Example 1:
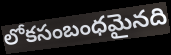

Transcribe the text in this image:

లోకసంబంధమైనది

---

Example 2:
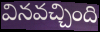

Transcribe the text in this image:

వినవచ్చింది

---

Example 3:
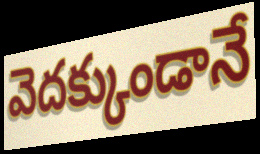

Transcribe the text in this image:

వెదక్కుండానే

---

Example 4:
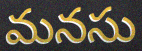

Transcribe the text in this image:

మనసు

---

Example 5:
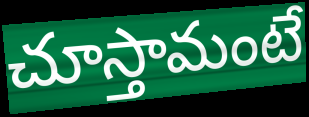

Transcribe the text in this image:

చూస్తామంటే